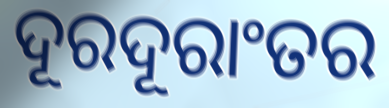
ଦୂରଦୂରାଂତର